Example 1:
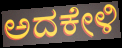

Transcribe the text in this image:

ಅದಕೇಳಿ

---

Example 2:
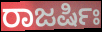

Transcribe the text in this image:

ರಾಜರ್ಷಿಃ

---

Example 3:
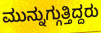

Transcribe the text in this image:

ಮುನ್ನುಗ್ಗುತ್ತಿದ್ದರು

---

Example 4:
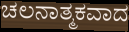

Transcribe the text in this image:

ಚಲನಾತ್ಮಕವಾದ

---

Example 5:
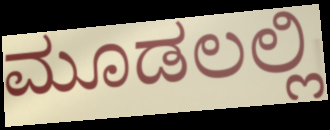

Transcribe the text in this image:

ಮೂಡಲಲ್ಲಿ